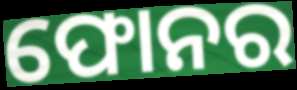
ଫୋନର